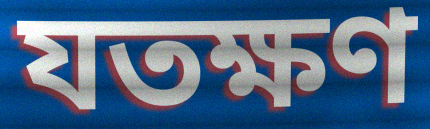
যতক্ষণ